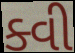
ક્વી